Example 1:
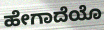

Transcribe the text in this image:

ಹೇಗಾದೆಯೊ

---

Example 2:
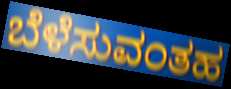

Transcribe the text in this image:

ಬೆಳೆಸುವಂತಹ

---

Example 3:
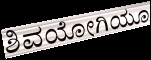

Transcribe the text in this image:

ಶಿವಯೋಗಿಯೂ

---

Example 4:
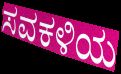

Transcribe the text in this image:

ಸವಕಳಿಯ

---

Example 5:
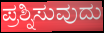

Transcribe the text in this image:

ಪ್ರಶ್ನಿಸುವುದು